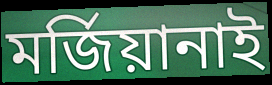
মৰ্জিয়ানাই